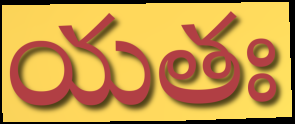
యతః